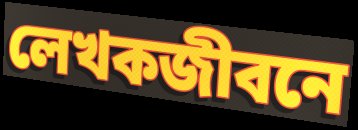
লেখকজীবনে